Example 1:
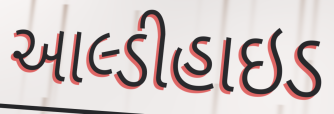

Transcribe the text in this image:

આલ્ડીહાઇડ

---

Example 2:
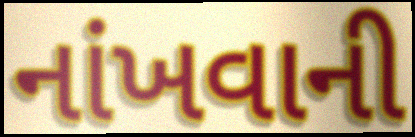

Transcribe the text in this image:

નાંખવાની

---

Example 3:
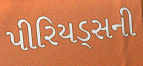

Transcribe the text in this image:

પીરિયડ્સની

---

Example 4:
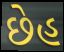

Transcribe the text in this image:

છેહ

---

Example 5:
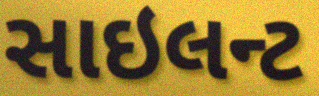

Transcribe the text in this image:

સાઇલન્ટ